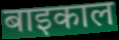
बाइकाल